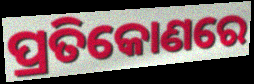
ପ୍ରତିକୋଣରେ